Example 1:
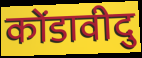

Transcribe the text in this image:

कोंडावीदु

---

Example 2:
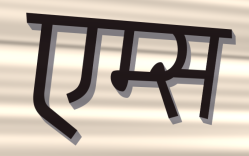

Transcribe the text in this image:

एम्‍स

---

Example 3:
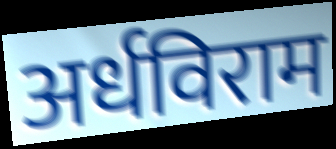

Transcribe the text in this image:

अर्धविराम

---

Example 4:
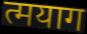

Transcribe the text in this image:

त्मयाग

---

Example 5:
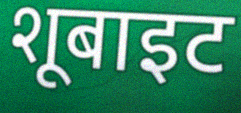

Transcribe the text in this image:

शूबाइट